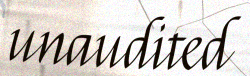
unaudited